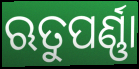
ଋତୁପର୍ଣ୍ଣା